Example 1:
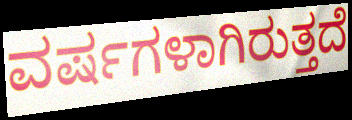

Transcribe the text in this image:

ವರ್ಷಗಳಾಗಿರುತ್ತದೆ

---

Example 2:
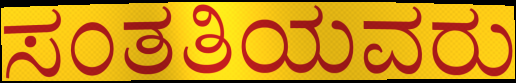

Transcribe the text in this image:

ಸಂತತಿಯವರು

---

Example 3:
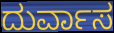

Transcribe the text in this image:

ದುರ್ವಾಸ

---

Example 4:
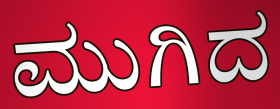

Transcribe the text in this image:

ಮುಗಿದ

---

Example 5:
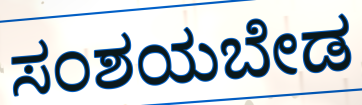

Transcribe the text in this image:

ಸಂಶಯಬೇಡ